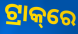
ଟ୍ରାକ୍‌ରେ